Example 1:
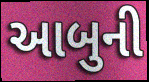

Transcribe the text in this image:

આબુની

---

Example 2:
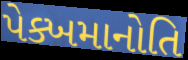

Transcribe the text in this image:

પેક્ખમાનોતિ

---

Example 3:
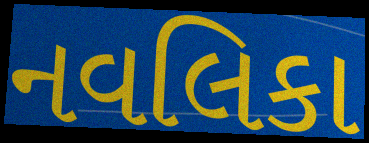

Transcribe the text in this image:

નવલિકા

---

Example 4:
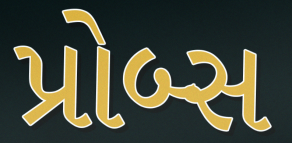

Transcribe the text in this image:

પ્રોબ્સ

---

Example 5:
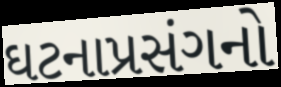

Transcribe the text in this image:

ઘટનાપ્રસંગનો